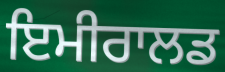
ਇਮੀਰਾਲਡ